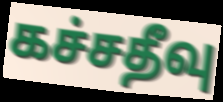
கச்சதீவு